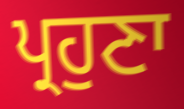
ਪ੍ਰਹੁਣਾ